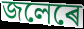
জলেৰে